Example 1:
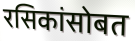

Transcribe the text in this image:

रसिकांसोबत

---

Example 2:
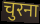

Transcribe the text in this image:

चुरना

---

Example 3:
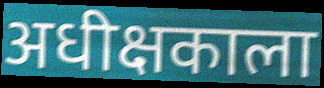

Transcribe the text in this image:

अधीक्षकाला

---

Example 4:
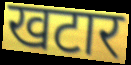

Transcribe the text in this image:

खटार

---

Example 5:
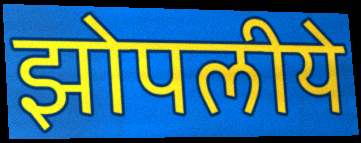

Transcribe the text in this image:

झोपलीये